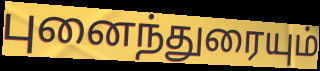
புனைந்துரையும்